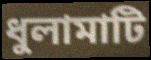
ধুলামাটি